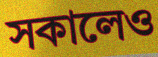
সকালেও